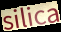
silica